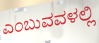
ಎಂಬುವವಳಲ್ಲಿ